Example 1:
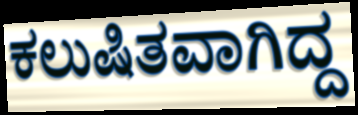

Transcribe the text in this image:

ಕಲುಷಿತವಾಗಿದ್ದ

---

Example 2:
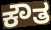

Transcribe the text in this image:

ಕೌತ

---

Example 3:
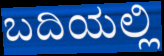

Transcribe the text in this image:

ಬದಿಯಲ್ಲಿ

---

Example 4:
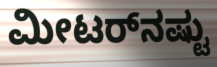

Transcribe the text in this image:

ಮೀಟರ್‌ನಷ್ಟು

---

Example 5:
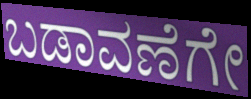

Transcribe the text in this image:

ಬಡಾವಣೆಗೇ